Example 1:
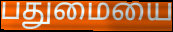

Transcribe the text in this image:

பதுமையை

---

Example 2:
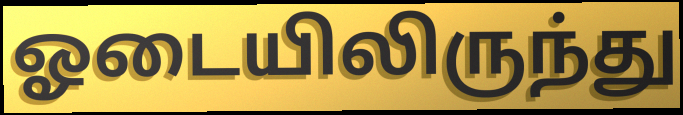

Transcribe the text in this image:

ஓடையிலிருந்து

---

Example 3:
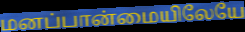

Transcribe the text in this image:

மனப்பான்மையிலேயே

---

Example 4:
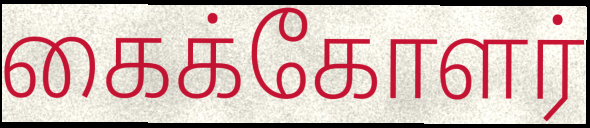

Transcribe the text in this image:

கைக்கோளர்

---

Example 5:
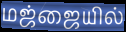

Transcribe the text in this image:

மஜ்ஜையில்